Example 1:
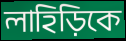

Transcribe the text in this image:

লাহিড়িকে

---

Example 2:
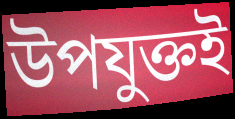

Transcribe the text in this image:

উপযুক্তই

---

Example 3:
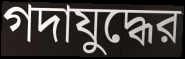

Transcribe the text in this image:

গদাযুদ্ধের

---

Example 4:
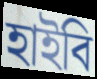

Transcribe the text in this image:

হাইবি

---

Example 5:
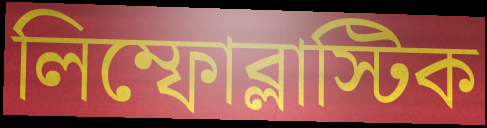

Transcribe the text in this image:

লিম্ফোব্লাস্টিক